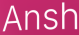
Ansh